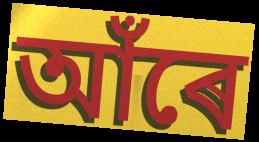
আঁৰে